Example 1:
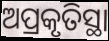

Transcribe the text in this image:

ଅପ୍ରକୃତିସ୍ଥା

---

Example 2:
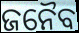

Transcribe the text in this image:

ଜନୈବ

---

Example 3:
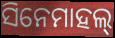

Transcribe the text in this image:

ସିନେମାହଲ୍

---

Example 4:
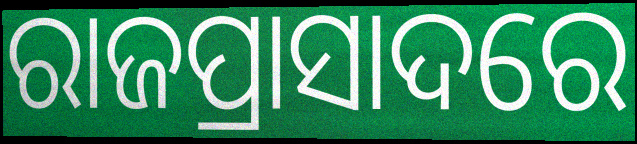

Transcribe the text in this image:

ରାଜପ୍ରାସାଦରେ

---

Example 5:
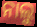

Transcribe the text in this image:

ନାଲୁ